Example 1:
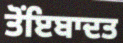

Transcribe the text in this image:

ਤੋਂਇਬਾਦਤ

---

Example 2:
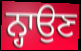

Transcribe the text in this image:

ਨ੍ਹਾਉਣ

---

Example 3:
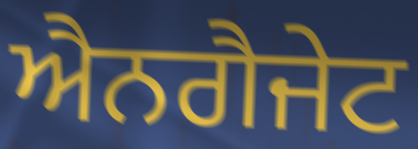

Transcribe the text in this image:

ਐਨਗੈਜੇਟ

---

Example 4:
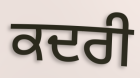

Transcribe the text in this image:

ਕਦਰੀ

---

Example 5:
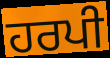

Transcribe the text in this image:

ਹਰਪੀ